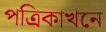
পত্ৰিকাখনে